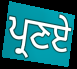
ਪ੍ਰਣਏ